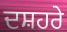
ਦਸ਼ਹਰੇ